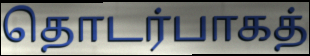
தொடர்பாகத்